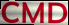
CMD